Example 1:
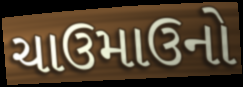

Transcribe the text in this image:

ચાઉમાઉનો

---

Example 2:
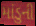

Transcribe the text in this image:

માંડુની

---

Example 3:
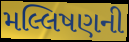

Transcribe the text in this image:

મલ્લિષણની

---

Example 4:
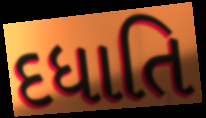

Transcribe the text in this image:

દધાતિ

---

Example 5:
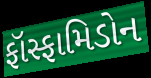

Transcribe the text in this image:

ફૉસ્ફામિડોન